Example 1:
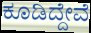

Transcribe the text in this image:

ಕೂಡಿದ್ದೇವೆ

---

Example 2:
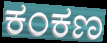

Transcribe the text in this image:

ಕಂಕಣ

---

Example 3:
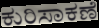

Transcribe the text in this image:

ಕುರಿಸಾಕಣೆ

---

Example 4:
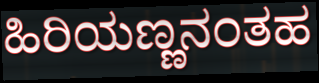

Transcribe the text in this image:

ಹಿರಿಯಣ್ಣನಂತಹ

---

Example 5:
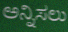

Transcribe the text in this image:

ಅನ್ನಿಸಲು